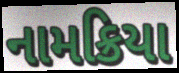
નામક્રિયા